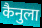
कैनुला